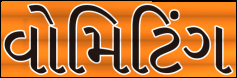
વોમિટિંગ